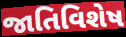
જાતિવિશેષ